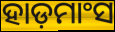
ହାଡ଼ମାଂସ